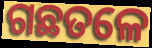
ଗଛତଳେ